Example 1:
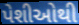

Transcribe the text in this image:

પેશીઓથી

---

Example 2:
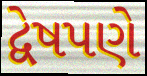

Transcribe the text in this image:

દ્વેષપણે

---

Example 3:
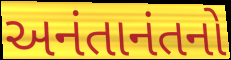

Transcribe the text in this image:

અનંતાનંતનો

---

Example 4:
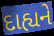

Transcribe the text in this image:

દાહ્યને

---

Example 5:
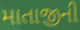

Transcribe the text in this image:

માતાજીની